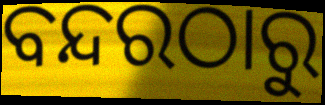
ବନ୍ଦରଠାରୁ